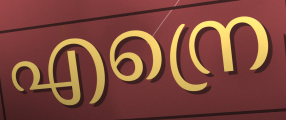
എന്രെ